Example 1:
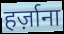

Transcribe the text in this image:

हर्ज़ाना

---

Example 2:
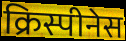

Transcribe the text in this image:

क्रिस्पीनेस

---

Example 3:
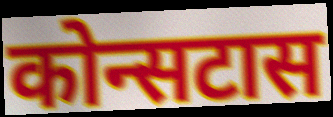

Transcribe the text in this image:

कोन्सटास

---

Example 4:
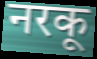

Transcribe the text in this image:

नरकू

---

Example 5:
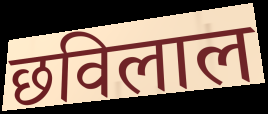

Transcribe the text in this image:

छविलाल